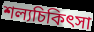
শল্যচিকিৎসা